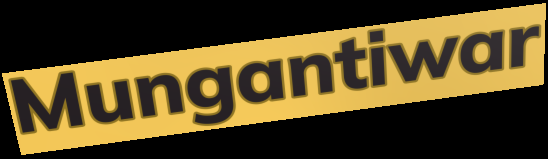
Mungantiwar